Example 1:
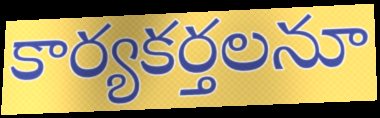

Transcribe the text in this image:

కార్యకర్తలనూ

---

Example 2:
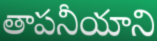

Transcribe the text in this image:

తాపనీయాని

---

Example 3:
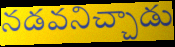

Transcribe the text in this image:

నడవనిచ్చాడు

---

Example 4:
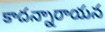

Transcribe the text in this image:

కాదన్నారాయన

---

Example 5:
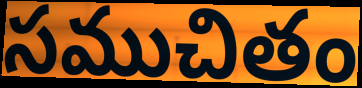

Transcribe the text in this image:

సముచితం